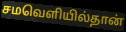
சமவெளியில்தான்